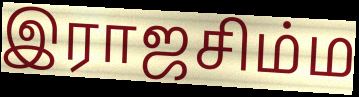
இராஜசிம்ம